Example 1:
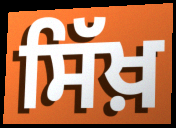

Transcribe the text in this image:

ਸਿੱਖ਼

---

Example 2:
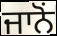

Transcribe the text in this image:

ਜਾਨੋਂ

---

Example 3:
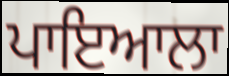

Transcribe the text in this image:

ਪਾਇਆਲਾ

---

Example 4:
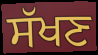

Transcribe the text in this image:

ਸੱਖਣ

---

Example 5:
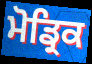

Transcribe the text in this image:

ਮੋਡ੍ਰਿਕ